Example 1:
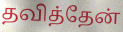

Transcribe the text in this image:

தவித்தேன்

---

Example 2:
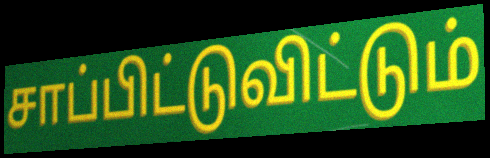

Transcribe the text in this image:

சாப்பிட்டுவிட்டும்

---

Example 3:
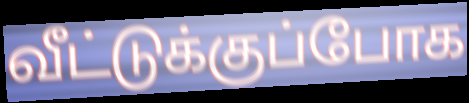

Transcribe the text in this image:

வீட்டுக்குப்போக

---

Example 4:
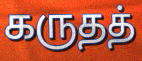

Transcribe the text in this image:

கருதத்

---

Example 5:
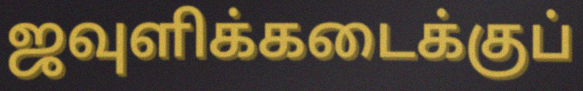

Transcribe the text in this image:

ஜவுளிக்கடைக்குப்